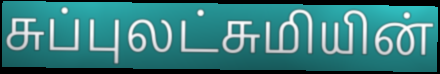
சுப்புலட்சுமியின்